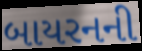
બાયરનની